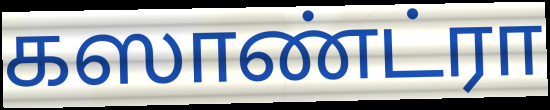
கஸாண்ட்ரா